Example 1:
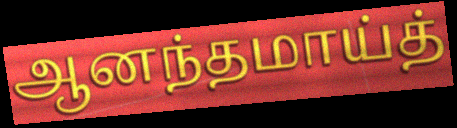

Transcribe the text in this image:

ஆனந்தமாய்த்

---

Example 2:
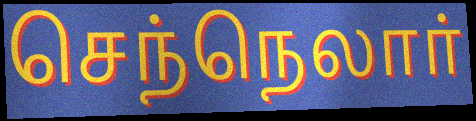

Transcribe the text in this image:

செந்நெலார்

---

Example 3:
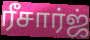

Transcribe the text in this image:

ரீசார்ஜ்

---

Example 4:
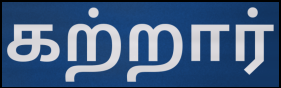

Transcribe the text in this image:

கற்றார்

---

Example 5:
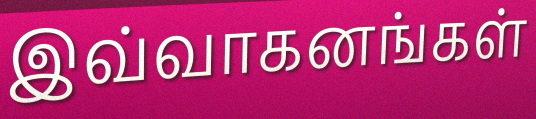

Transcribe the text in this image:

இவ்வாகனங்கள்